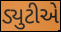
ડ્યુટીએ